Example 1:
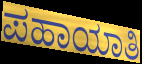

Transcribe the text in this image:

ಪಹಾಯಾತಿ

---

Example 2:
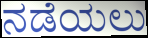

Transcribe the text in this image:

ನಡೆಯಲು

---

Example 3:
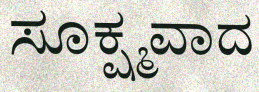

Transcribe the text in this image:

ಸೂಕ್ಷ್ಮವಾದ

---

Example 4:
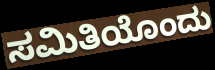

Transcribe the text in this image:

ಸಮಿತಿಯೊಂದು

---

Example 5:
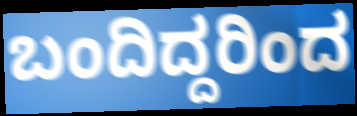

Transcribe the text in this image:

ಬಂದಿದ್ದರಿಂದ